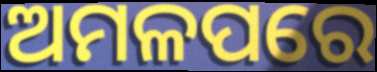
ଅମଳପରେ